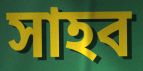
সাহব